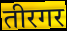
तीरगर